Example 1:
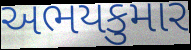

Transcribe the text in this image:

અભયકુમાર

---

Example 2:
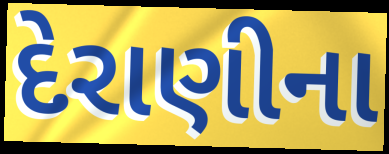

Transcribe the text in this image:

દેરાણીના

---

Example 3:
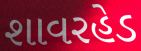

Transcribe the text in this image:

શાવરહેડ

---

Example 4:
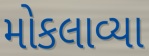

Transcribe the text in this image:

મોકલાવ્યા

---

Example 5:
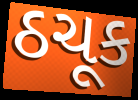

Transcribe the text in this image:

ઠચૂક